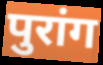
पुरांग